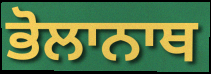
ਭੋਲਾਨਾਥ